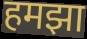
हमझा